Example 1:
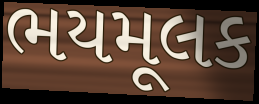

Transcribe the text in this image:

ભયમૂલક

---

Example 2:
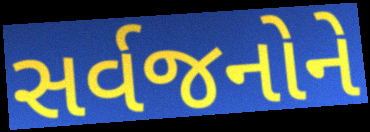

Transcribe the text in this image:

સર્વજનોને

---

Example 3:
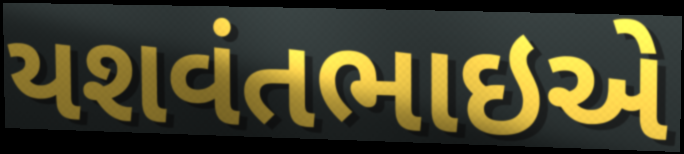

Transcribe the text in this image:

યશવંતભાઇએ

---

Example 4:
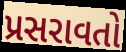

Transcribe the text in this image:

પ્રસરાવતો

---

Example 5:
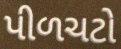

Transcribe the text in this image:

પીળચટો